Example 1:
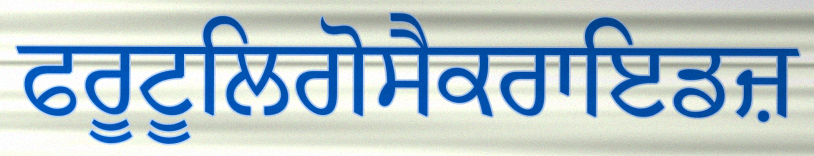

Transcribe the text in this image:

ਫਰੂਟੂਲਿਗੋਸੈਕਰਾਇਡਜ਼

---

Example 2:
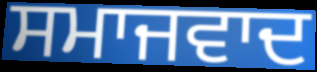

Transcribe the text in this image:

ਸਮਾਜਵਾਦ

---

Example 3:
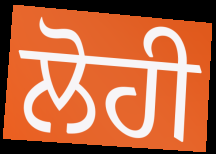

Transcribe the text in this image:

ਲੋਹੀ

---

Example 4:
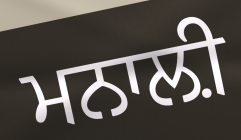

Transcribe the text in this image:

ਮਨਾਲ਼ੀ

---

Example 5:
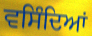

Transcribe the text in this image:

ਵਸਿੰਦਿਆਂ